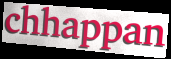
chhappan